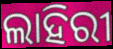
ଲାହିରୀ